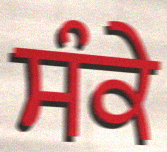
ਸੰਕੇ